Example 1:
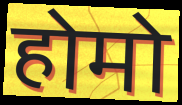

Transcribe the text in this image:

होमो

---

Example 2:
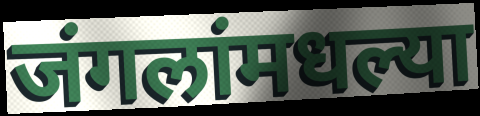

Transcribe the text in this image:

जंगलांमधल्या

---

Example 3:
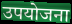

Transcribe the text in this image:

उपयोजना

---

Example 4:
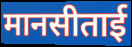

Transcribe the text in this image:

मानसीताई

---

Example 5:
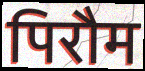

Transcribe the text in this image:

पिरौम